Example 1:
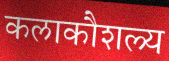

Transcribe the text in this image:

कलाकौशल्य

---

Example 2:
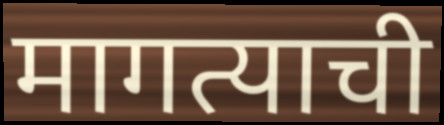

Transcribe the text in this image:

मागत्याची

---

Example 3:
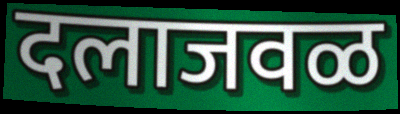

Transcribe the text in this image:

दलाजवळ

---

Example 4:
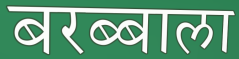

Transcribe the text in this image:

बरब्बाला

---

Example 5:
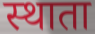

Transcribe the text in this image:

स्थाता